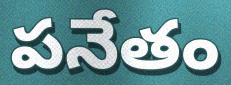
పనేతం